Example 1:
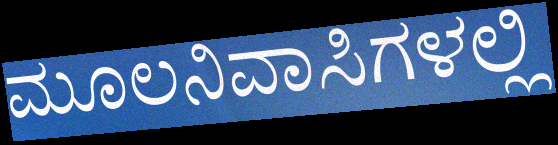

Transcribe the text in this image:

ಮೂಲನಿವಾಸಿಗಳಲ್ಲಿ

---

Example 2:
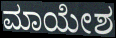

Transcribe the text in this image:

ಮಾಯೇಶ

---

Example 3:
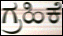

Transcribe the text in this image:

ಗ್ರಹಿಕೆ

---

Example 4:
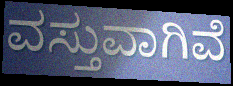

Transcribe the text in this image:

ವಸ್ತುವಾಗಿವೆ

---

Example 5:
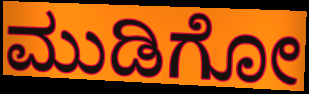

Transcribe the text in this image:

ಮುಡಿಗೋ